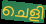
ചെളി